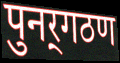
पुनर्गठण